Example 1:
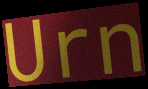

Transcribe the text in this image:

Urn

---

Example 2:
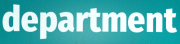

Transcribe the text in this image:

department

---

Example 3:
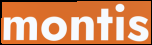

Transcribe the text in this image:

montis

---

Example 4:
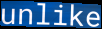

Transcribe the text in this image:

unlike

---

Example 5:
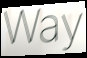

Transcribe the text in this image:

Way